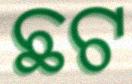
ଛଟ